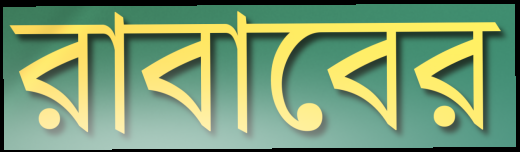
রাবাবের